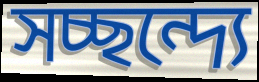
সচ্ছন্দ্যে